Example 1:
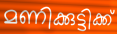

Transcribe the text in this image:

മണിക്കുട്ടിക്ക്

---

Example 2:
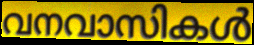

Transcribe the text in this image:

വനവാസികൾ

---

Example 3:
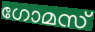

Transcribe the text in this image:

ഗോമസ്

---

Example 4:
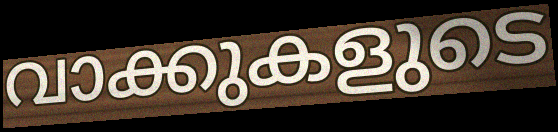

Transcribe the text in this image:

വാക്കുകളുടെ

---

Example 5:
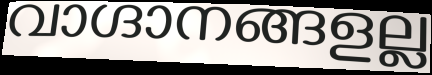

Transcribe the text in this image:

വാഗ്ദാനങ്ങളല്ല